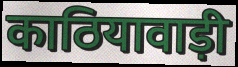
काठियावाड़ी